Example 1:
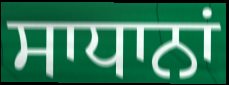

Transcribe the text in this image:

ਸਾਧਾਨਾਂ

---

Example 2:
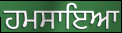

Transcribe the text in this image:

ਹਮਸਾਇਆ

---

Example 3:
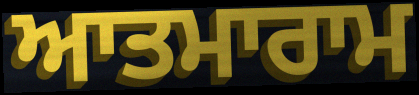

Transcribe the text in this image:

ਆਤਮਾਰਾਮ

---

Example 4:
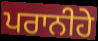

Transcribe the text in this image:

ਪਰਾਨੀਹੇ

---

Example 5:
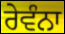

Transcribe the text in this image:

ਰੇਵੰਨਾ